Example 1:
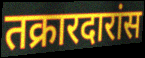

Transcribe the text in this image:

तक्रारदारांस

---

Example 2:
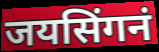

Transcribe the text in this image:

जयसिंगनं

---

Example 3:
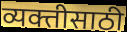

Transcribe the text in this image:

व्यक्तीसाठी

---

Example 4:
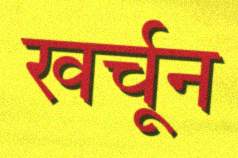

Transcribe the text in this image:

खर्चून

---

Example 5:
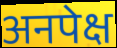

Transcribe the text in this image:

अनपेक्ष